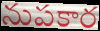
నుపకార